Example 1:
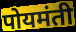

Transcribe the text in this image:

पोयमंती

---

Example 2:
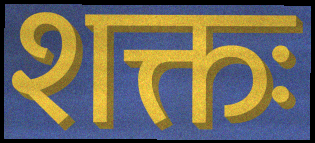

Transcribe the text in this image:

शक्तः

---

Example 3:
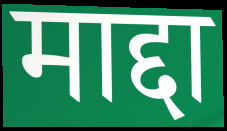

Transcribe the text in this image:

माद्दा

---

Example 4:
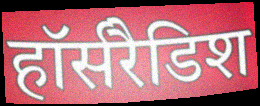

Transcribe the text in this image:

हॉर्सरैडिश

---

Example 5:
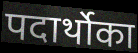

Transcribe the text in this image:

पदार्थोका